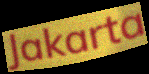
Jakarta